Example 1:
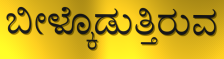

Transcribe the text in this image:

ಬೀಳ್ಕೊಡುತ್ತಿರುವ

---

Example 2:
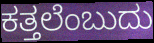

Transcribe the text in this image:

ಕತ್ತಲೆಂಬುದು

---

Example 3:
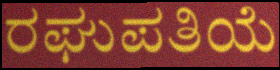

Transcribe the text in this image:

ರಘುಪತಿಯೆ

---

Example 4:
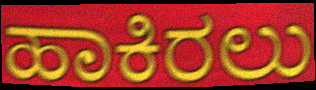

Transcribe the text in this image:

ಹಾಕಿರಲು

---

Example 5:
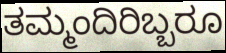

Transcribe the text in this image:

ತಮ್ಮಂದಿರಿಬ್ಬರೂ